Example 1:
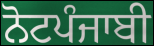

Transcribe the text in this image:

ਨੋਟਪੰਜਾਬੀ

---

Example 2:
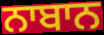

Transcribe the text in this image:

ਨਾਬਾਨ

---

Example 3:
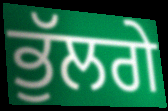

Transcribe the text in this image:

ਭੁੱਲਗੇ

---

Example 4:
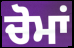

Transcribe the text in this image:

ਚੋਮਾਂ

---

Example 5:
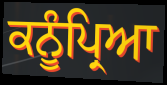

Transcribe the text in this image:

ਕਨੂੰਪ੍ਰਿਆ